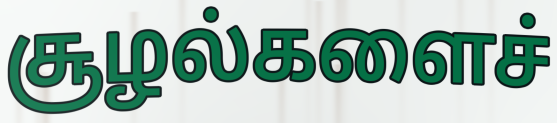
சூழல்களைச்